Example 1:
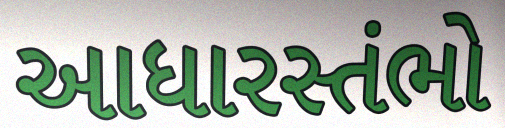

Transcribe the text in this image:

આધારસ્તંભો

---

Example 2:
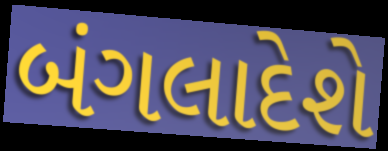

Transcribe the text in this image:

બંગલાદેશે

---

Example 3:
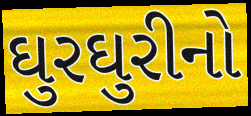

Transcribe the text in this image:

ઘુરઘુરીનો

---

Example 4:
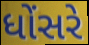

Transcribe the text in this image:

ધોંસરે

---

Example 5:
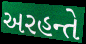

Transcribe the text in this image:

અરહન્તે